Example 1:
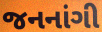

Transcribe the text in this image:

જનનાંગી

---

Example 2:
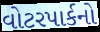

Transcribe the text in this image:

વોટરપાર્કનો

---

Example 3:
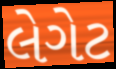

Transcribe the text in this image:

લેગેટ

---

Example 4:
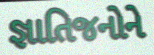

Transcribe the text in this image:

જ્ઞાતિજનોને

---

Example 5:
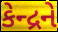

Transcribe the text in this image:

કેન્દ્રને